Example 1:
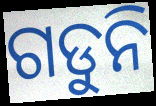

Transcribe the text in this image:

ଗଡୁନି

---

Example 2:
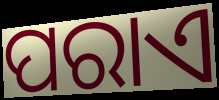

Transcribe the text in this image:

ପରାଏ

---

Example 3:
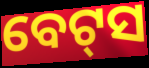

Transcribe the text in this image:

ବେଟ୍‍ସ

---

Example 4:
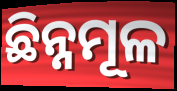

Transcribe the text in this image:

ଛିନ୍ନମୂଳ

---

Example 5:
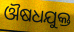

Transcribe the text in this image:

ଔଷଧଯୁକ୍ତ